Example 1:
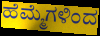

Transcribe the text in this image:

ಹೆಮ್ಮೆಗಳಿಂದ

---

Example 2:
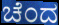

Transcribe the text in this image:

ಚೆಂದ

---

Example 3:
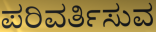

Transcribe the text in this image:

ಪರಿವರ್ತಿಸುವ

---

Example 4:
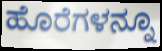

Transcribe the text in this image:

ಹೊರೆಗಳನ್ನೂ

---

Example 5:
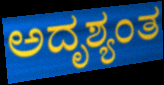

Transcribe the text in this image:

ಅದೃಶ್ಯಂತ